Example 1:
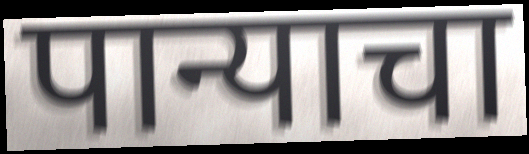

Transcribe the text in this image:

पान्याचा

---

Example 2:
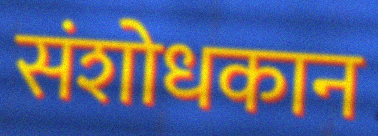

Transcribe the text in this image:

संशोधकान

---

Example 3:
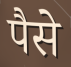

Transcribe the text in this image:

पैसे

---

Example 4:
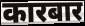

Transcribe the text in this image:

कारबार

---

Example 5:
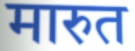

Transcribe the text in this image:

मारुत